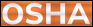
OSHA